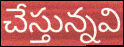
చేస్తున్నవి